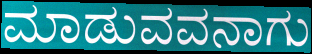
ಮಾಡುವವನಾಗು